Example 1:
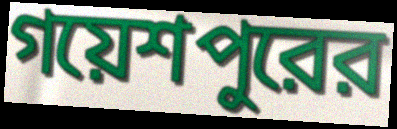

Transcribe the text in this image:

গয়েশপুরের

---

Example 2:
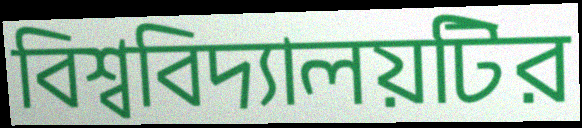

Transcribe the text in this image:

বিশ্ববিদ্যালয়টির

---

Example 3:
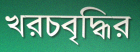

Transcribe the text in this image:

খরচবৃদ্ধির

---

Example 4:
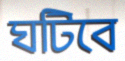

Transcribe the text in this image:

ঘটিবে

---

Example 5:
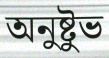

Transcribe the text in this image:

অনুষ্টুভ